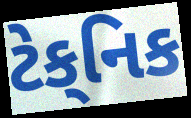
ટેક્‌નિક